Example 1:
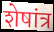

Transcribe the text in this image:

शेषांत्र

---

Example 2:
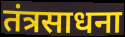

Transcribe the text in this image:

तंत्रसाधना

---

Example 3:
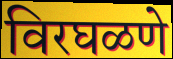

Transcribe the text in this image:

विरघळणे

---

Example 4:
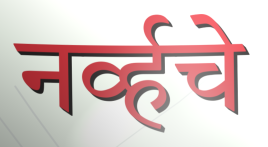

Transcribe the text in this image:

नर्व्हचे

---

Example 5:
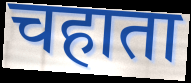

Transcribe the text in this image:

चहाता